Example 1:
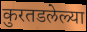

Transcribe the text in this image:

कुरतडलेल्या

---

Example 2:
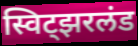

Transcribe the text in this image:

स्विट्झरलंड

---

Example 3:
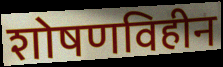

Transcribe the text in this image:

शोषणविहीन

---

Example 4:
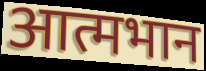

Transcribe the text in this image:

आत्मभान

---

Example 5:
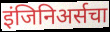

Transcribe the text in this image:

इंजिनिअर्सचा